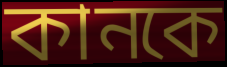
কানকে